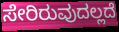
ಸೇರಿರುವುದಲ್ಲದೆ